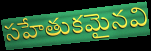
సహేతుకమైనవి